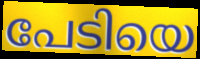
പേടിയെ